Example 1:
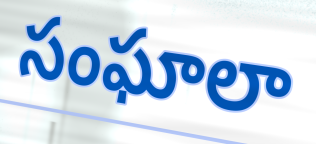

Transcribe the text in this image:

సంఘాలా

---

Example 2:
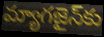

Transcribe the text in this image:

మ్యాగజైన్‌కు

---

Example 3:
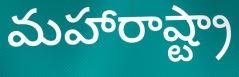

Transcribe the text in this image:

మహారాష్ట్రా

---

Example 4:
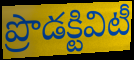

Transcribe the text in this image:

ప్రొడక్టివిటీ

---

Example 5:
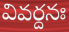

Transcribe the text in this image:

వివర్దనః